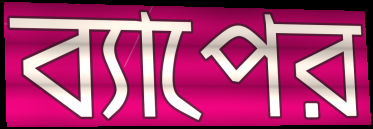
ব্যাপের